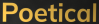
Poetical